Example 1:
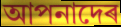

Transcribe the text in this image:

আপনাদেৰ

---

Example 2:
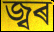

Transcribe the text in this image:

জ্বৰ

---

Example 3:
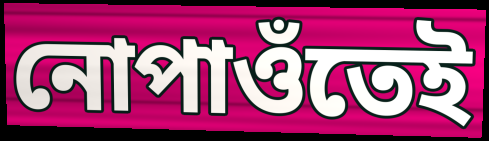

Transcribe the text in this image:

নোপাওঁতেই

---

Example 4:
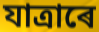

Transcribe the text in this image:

যাত্ৰাৰে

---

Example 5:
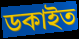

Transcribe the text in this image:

ডকাইত